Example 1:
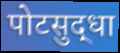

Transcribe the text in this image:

पोटसुद्धा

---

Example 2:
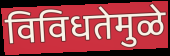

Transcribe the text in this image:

विविधतेमुळे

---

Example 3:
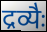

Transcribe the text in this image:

द्रव्यैः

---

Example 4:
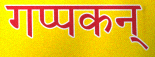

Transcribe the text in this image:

गप्पकन्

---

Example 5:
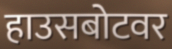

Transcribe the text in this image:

हाउसबोटवर